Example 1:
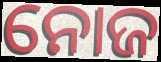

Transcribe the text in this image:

ନୋଜ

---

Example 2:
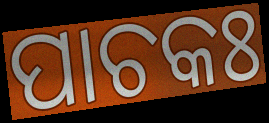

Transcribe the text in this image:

ପାଚକଃ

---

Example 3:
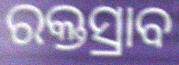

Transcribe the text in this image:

ରକ୍ତସ୍ରାବ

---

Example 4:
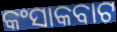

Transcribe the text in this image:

କଂସାକବାଟ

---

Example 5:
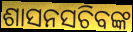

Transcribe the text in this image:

ଶାସନସଚିବଙ୍କ